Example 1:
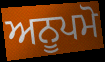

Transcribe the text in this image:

ਅਨੂਪਮੋ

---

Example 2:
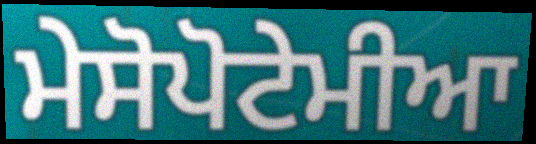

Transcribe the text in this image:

ਮੇਸੋਪੋਟੇਮੀਆ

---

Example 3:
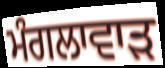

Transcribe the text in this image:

ਮੰਗਲਾਵਾੜ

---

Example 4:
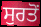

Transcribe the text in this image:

ਸੁਰਤੋਂ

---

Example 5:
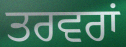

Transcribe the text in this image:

ਤਰਵਰਾਂ